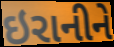
ઇરાનીને